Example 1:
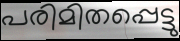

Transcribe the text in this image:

പരിമിതപ്പെട്ടു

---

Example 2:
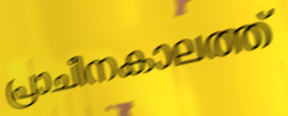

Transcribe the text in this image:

പ്രാചീനകാലത്ത്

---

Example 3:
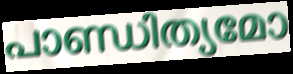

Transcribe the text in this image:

പാണ്ഡിത്യമോ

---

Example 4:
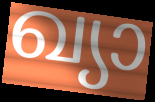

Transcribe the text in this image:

ഖ്യാ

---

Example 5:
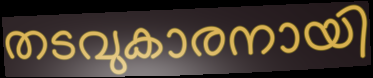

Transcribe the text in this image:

തടവുകാരനായി